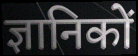
ज्ञानिकों